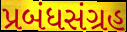
પ્રબંધસંગ્રહ